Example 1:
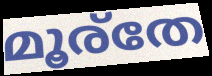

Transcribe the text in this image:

മൂര്തേ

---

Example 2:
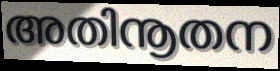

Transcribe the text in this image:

അതിനൂതന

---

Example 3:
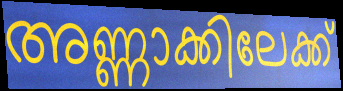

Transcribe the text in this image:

അണ്ണാക്കിലേക്ക്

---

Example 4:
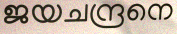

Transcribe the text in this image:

ജയചന്ദ്രനെ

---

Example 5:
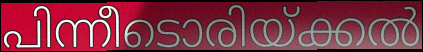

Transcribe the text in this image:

പിന്നീടൊരിയ്ക്കൽ